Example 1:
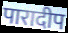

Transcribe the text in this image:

पारादीप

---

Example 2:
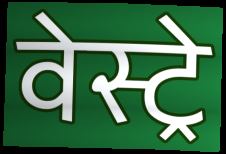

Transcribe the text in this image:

वेस्ट्रे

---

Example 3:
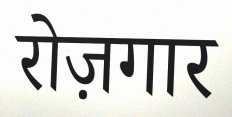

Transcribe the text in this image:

रोज़गार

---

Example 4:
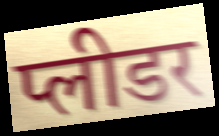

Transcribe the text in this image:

प्लीडर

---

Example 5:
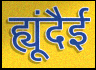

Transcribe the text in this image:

ह्यूंदैई